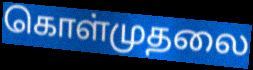
கொள்முதலை